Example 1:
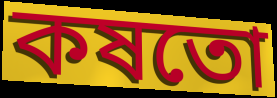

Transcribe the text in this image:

কষতো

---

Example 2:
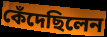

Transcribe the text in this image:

কেঁদেছিলেন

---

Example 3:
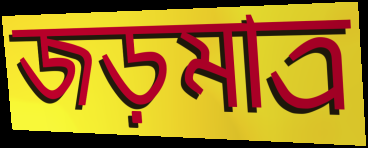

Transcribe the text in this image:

জড়মাত্র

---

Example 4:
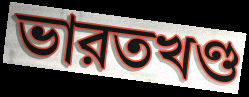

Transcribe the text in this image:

ভারতখণ্ড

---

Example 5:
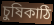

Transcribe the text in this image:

চুষিকাঠি